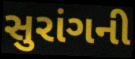
સુરાંગની